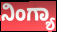
ನಿಂಗ್ಯಾ